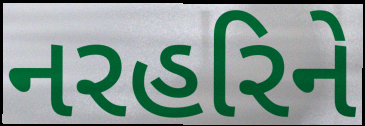
નરહરિને